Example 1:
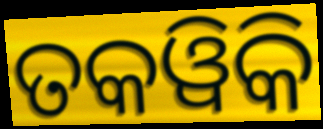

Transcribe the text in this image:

ତକୱିକି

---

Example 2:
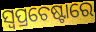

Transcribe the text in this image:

ସ୍ଵପ୍ରଚେଷ୍ଟାରେ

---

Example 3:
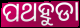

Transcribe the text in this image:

ପଥହୁଡା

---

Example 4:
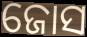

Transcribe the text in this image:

ଜୋସ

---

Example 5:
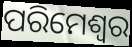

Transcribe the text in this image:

ପରିମେଶ୍ୱର